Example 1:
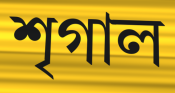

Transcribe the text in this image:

শৃগাল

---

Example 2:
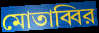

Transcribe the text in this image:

মোতাব্বির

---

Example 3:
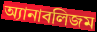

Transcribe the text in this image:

অ্যানাবলিজম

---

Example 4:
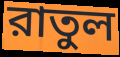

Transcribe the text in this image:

রাতুল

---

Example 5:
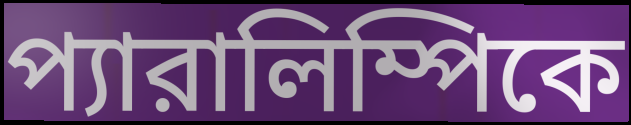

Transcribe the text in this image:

প্যারালিম্পিকে